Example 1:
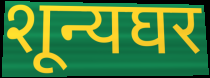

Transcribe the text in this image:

शून्यघर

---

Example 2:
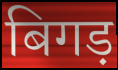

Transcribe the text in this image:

बिगड़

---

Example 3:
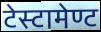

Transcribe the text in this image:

टेस्टामेण्ट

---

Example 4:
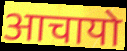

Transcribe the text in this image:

आचायो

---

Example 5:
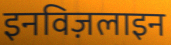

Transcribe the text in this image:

इनविज़लाइन